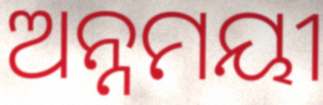
ଅନ୍ନମୟୀ